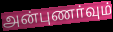
அன்புணர்வும்